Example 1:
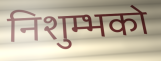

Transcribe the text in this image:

निशुम्भको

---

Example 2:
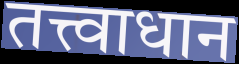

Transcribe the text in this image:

तत्त्वाधान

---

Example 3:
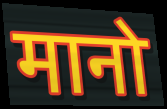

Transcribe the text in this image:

मानो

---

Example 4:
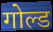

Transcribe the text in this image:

गोल्ड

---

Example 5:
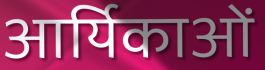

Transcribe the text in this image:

आर्यिकाओं